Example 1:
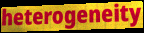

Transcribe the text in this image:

heterogeneity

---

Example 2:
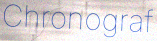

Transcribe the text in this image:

Chronograf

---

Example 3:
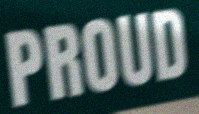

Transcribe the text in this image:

PROUD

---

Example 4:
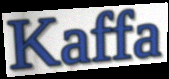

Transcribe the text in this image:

Kaffa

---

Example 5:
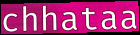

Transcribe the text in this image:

chhataa